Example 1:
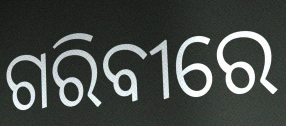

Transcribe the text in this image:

ଗରିବୀରେ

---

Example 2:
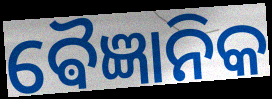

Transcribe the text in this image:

ଵୈଜ୍ଞାନିକ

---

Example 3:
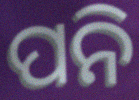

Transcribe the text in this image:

ପନି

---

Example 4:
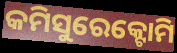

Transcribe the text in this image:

କମିସୁରେକ୍ଟୋମି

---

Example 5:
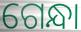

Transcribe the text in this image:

ଗେନ୍ଧା